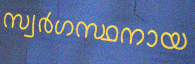
സ്വർഗസ്ഥനായ